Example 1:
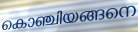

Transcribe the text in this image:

കൊഞ്ചിയങ്ങനെ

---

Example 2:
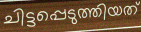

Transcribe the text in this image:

ചിട്ടപ്പെടുത്തിയത്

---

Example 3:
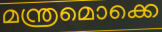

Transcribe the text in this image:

മന്ത്രമൊക്കെ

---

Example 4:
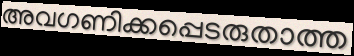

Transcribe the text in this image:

അവഗണിക്കപ്പെടരുതാത്ത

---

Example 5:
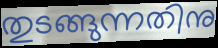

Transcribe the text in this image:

തുടങ്ങുന്നതിനു